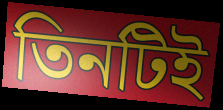
তিনটিই